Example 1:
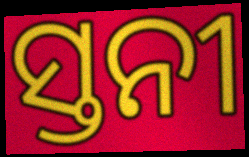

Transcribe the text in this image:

ସ୍ତନୀ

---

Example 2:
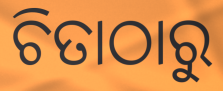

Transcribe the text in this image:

ଚିତାଠାରୁ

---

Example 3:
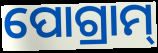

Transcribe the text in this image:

ପୋଗ୍ରାମ୍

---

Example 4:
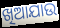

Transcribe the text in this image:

ଖିଆଯାଉ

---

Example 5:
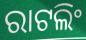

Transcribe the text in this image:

ରାଟଲିଂ